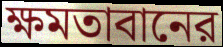
ক্ষমতাবানের